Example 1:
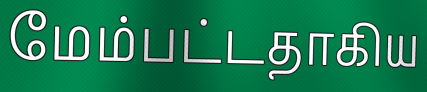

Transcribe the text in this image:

மேம்பட்டதாகிய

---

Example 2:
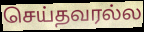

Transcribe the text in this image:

செய்தவரல்ல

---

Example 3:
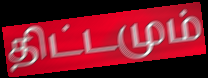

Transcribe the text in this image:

திட்டமும்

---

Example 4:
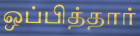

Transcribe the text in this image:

ஒப்பித்தார்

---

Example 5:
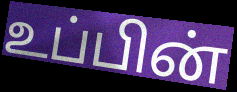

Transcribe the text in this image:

உப்பின்